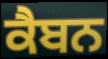
ਕੈਬਨ